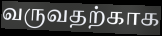
வருவதற்காக